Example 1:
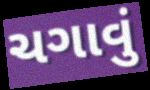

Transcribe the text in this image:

ચગાવું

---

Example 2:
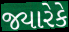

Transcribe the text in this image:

જ્યારેકે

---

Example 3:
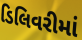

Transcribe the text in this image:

ડિલિવરીમાં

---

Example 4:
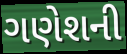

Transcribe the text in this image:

ગણેશની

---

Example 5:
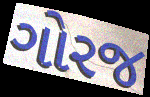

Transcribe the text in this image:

ગોરજ